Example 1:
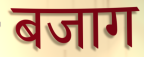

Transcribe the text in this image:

बजाग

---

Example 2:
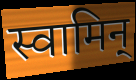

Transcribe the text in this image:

स्वामिन्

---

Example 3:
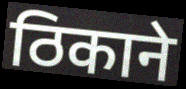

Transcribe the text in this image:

ठिकाने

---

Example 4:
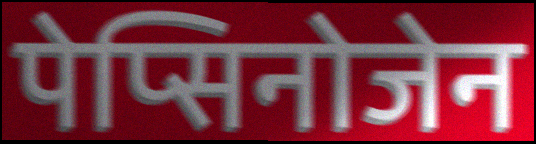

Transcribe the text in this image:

पेप्सिनोजेन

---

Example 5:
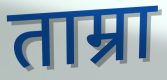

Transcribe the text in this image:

ताम्रा